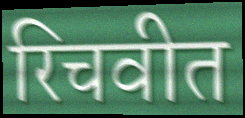
रिचवीत